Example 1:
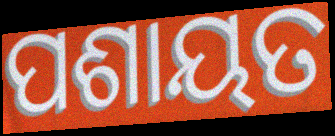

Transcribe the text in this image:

ପଶାୟତ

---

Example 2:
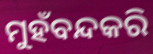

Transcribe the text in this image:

ମୁହଁବନ୍ଦକରି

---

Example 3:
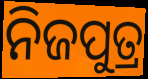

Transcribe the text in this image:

ନିଜପୁତ୍ର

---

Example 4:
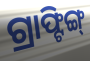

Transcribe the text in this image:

ଗ୍ରାଫ୍ଟିଙ୍ଗ୍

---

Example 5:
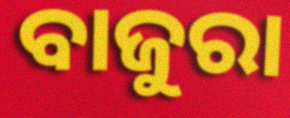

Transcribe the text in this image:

ବାଜୁରା